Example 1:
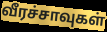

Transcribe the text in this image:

வீரச்சாவுகள்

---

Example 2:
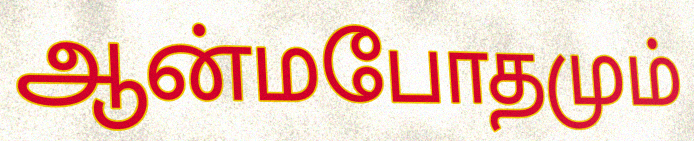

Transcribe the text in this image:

ஆன்மபோதமும்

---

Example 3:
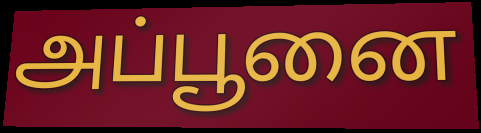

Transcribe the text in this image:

அப்பூனை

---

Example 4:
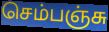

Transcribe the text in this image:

செம்பஞ்சு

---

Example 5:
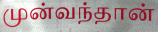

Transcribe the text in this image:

முன்வந்தான்